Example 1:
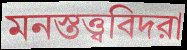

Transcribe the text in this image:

মনস্তত্ত্ববিদরা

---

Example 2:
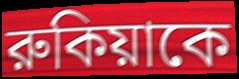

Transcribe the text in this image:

রুকিয়াকে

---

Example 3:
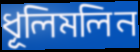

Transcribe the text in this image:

ধূলিমলিন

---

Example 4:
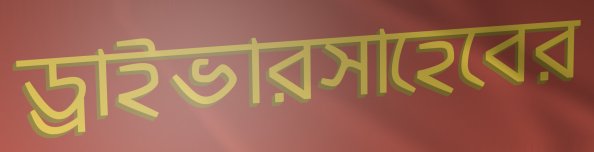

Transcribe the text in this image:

ড্রাইভারসাহেবের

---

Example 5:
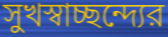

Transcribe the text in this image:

সুখস্বাচ্ছন্দ্যের